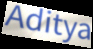
Aditya